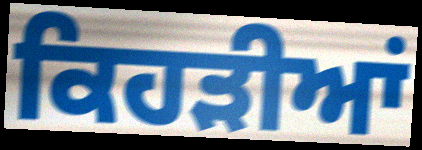
ਕਿਹੜੀਆਂ